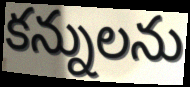
కన్నులను